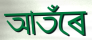
আতঁৰে